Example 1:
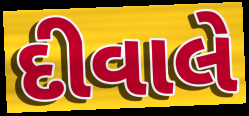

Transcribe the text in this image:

દીવાલે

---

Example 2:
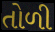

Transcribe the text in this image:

તોળી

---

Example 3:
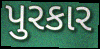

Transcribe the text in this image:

પુરકાર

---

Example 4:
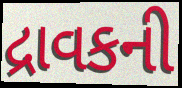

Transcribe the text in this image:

દ્રાવકની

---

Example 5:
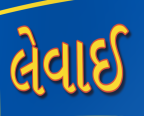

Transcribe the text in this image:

લેવાઈ